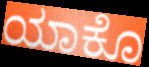
ಯಾಕೊ